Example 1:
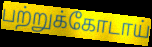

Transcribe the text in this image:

பற்றுக்கோடாய்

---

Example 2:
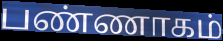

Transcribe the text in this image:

பண்ணாகம்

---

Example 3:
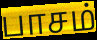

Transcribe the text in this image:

பாசம்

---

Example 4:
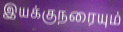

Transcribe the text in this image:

இயக்குநரையும்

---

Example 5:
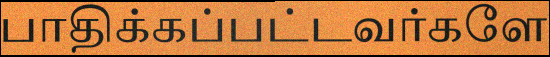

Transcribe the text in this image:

பாதிக்கப்பட்டவர்களே